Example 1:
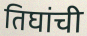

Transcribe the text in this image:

तिघांची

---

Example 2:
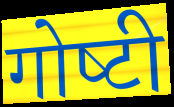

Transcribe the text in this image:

गोष्‍टी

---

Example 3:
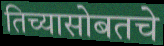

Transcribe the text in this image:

तिच्यासोबतचे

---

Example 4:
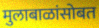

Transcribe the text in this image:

मुलाबाळांसोबत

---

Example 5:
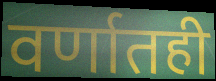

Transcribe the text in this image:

वर्णातही